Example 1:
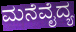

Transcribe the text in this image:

ಮನೆವೈದ್ಯ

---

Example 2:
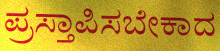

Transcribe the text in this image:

ಪ್ರಸ್ತಾಪಿಸಬೇಕಾದ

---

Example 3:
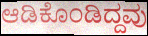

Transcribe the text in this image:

ಆಡಿಕೊಂಡಿದ್ದವು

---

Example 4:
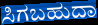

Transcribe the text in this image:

ಸಿಗಬಹುದಾ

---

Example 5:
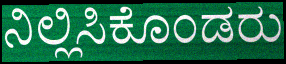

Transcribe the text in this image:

ನಿಲ್ಲಿಸಿಕೊಂಡರು